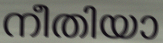
നീതിയാ